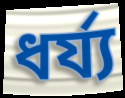
ধর্য্য